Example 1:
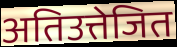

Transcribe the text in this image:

अतिउत्तेजित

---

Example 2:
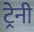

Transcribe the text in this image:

ट्रेनी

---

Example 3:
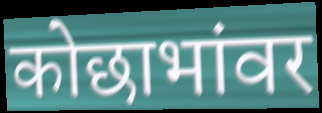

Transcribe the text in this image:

कोछाभांवर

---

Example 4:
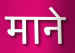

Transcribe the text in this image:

माने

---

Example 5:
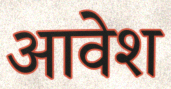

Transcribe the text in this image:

आवेश